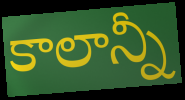
కాలాన్నీ